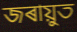
জৰায়ুত